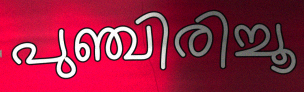
പുഞ്ചിരിച്ചൂ